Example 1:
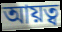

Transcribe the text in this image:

আয়ত্ব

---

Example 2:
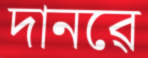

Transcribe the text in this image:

দানৱে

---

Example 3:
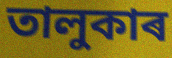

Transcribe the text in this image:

তালুকাৰ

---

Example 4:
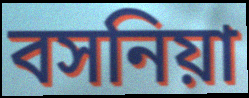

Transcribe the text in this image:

বসনিয়া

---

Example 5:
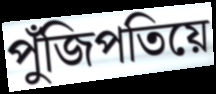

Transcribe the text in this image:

পুঁজিপতিয়ে